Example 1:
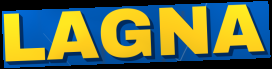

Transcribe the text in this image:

LAGNA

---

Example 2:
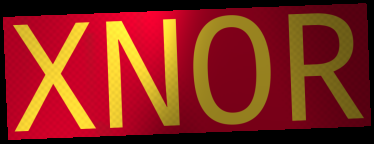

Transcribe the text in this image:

XNOR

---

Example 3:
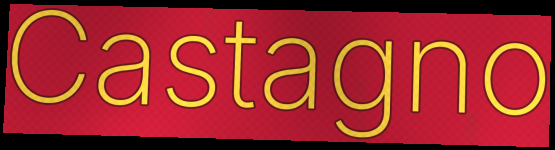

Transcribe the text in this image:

Castagno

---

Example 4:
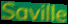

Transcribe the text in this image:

Saville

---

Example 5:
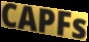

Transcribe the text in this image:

CAPFs